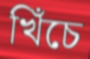
খিঁচে